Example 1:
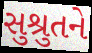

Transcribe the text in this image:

સુશ્રુતને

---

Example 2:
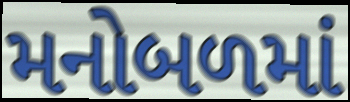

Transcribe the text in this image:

મનોબળમાં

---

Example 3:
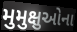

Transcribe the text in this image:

મુમુક્ષુઓના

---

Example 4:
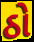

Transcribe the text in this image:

ઠો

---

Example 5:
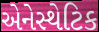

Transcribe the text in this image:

એનેસ્થેટિક